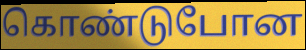
கொண்டுபோன